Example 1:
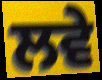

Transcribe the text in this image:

ਲਵੇ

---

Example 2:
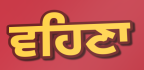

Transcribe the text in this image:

ਵਹਿਣਾ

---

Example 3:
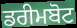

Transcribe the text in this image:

ਡਰੀਮਬੋਟ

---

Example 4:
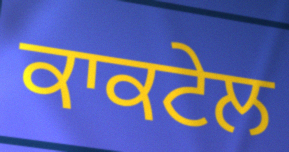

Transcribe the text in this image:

ਕਾਕਟੇਲ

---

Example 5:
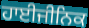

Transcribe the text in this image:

ਹਾਈਜੀਨਿਕ